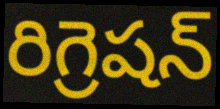
రిగ్రెషన్